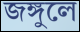
জঙ্গুলে